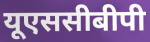
यूएससीबीपी